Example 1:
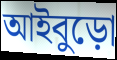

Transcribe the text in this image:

আইবুড়ো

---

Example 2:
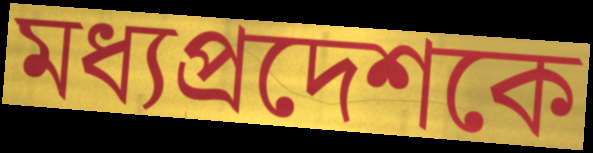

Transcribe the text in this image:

মধ্যপ্রদেশকে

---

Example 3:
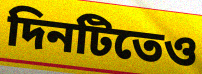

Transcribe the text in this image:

দিনটিতেও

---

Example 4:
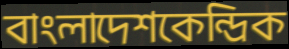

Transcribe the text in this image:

বাংলাদেশকেন্দ্রিক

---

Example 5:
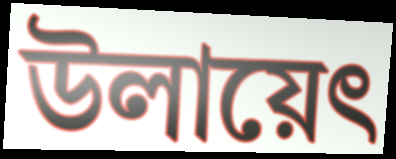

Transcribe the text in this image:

উলায়েৎ